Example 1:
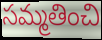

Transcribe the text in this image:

సమ్మతించి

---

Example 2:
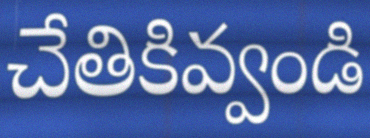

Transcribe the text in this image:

చేతికివ్వండి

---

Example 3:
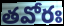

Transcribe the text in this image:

తవోరః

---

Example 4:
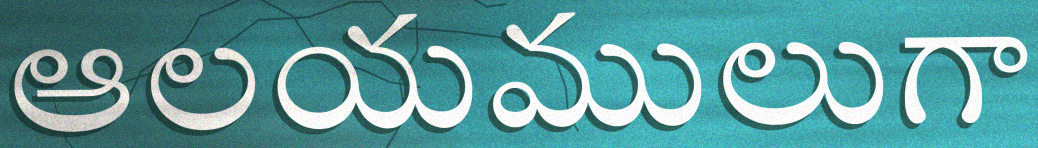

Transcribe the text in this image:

ఆలయములుగా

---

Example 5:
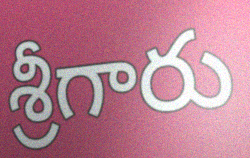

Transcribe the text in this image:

శ్రీగారు